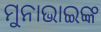
ମୁନାଭାଇଙ୍କ